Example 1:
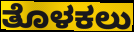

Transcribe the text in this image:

ತೊಳಕಲು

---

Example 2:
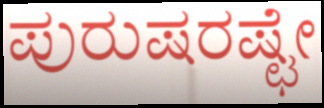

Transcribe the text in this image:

ಪುರುಷರಷ್ಟೇ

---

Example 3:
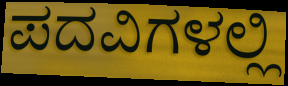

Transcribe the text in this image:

ಪದವಿಗಳಲ್ಲಿ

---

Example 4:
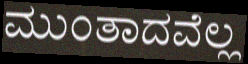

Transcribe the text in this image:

ಮುಂತಾದವೆಲ್ಲ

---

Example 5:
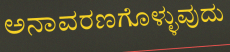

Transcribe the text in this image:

ಅನಾವರಣಗೊಳ್ಳುವುದು